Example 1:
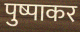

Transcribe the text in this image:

पुष्पाकर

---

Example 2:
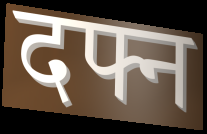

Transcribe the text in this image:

दफ्न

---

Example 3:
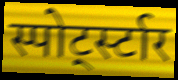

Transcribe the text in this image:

स्पोर्ट्स्टार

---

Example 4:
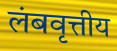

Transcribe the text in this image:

लंबवृत्तीय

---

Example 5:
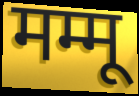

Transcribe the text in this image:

मम्मू